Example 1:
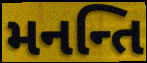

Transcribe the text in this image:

મનન્તિ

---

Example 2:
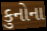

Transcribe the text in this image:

કુનોના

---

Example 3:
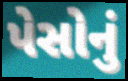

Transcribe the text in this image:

પેસોનું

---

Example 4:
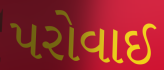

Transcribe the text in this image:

પરોવાઈ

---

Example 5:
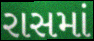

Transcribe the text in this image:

રાસમાં